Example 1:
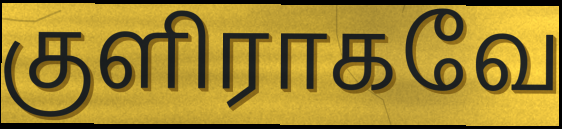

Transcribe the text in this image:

குளிராகவே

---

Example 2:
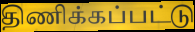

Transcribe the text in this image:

திணிக்கப்பட்டு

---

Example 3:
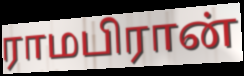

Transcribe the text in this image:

ராமபிரான்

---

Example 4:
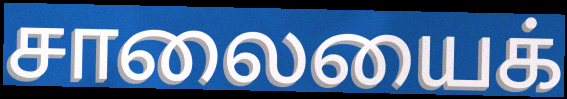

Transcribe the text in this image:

சாலையைக்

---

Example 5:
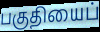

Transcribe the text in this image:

பகுதியைப்